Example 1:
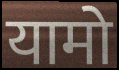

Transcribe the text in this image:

यामो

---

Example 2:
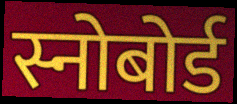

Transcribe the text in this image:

स्नोबोर्ड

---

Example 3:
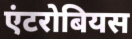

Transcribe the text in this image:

एंटरोबियस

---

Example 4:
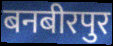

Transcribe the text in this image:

बनबीरपुर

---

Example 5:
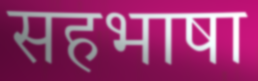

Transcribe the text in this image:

सहभाषा